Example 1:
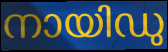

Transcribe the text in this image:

നായിഡു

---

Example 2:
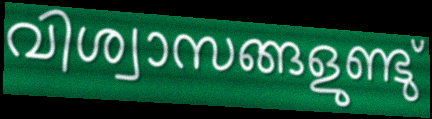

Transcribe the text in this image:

വിശ്വാസങ്ങളുണ്ടു്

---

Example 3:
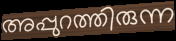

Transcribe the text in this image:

അപ്പുറത്തിരുന്ന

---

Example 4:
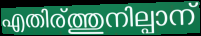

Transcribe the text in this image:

എതിര്ത്തുനില്പാന്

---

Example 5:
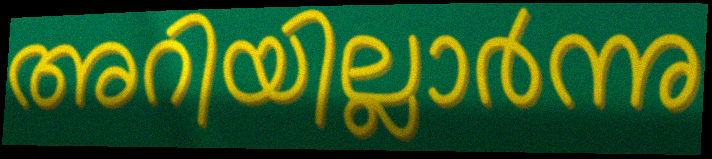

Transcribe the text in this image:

അറിയില്ലാർന്നു